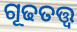
ଗୂଢତତ୍ତ୍ୱ